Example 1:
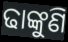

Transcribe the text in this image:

ଢାଙ୍କୁଣି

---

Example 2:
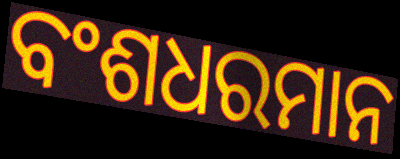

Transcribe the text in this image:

ବଂଶଧରମାନ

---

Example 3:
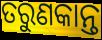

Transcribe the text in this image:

ତରୁଣକାନ୍ତ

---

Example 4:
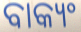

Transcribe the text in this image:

ବାକ୍ୟଂ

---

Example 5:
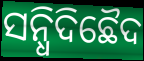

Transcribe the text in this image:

ସନ୍ଧିଦିଛୈଦ